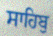
ਸਾਹਿਬੁ